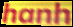
hanh